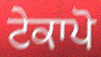
ਟੇਕਾਪੋ